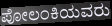
ಪೋಲಂಕಿಯವರು